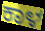
ಕಾಳ